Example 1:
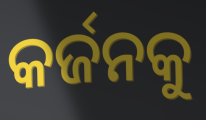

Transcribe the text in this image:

କର୍ଜନକୁ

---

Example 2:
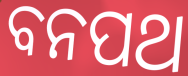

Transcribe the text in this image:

ବନପଥ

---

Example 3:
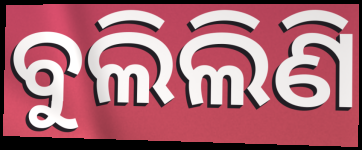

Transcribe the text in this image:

ବୁଲିଲିଣି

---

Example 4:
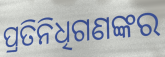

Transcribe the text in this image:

ପ୍ରତିନିଧିଗଣଙ୍କର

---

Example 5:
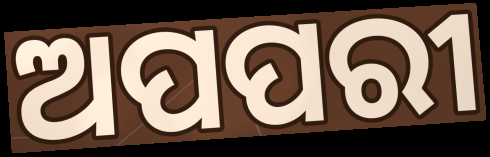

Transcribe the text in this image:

ଅପପରୀ